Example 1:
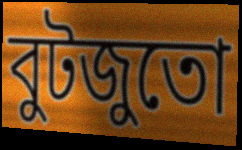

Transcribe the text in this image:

বুটজুতো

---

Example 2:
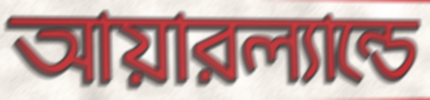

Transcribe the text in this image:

আয়ারল্যান্ডে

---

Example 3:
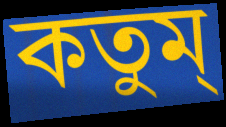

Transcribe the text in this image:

কতুম্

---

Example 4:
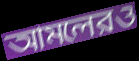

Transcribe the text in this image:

আমলেরও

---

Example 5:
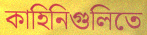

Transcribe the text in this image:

কাহিনিগুলিতে